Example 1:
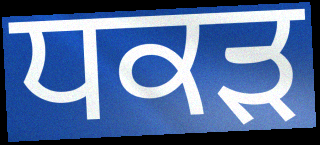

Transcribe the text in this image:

ਧਕੜ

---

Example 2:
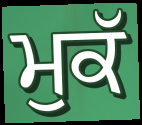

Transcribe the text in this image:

ਮੁਕੱ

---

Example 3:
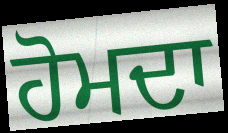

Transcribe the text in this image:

ਹੋਮਦਾ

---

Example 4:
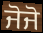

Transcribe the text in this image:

ਜੋਜੋ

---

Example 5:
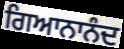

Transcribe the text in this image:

ਗਿਆਨਾਨੰਦ